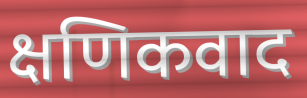
क्षणिकवाद